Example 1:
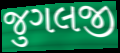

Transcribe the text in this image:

જુગલજી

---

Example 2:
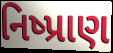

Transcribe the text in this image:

નિષ્પ્રાણ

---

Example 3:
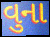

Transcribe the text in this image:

વુના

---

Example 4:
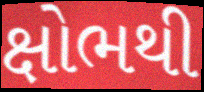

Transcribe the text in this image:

ક્ષોભથી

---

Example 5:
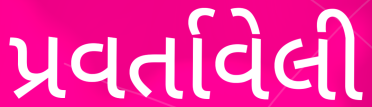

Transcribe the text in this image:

પ્રવર્તાવેલી